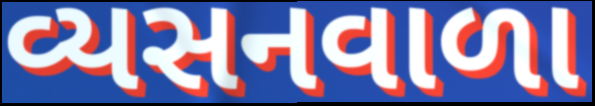
વ્યસનવાળા